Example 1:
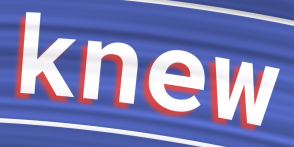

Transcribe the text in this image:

knew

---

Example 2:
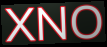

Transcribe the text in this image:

XNO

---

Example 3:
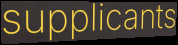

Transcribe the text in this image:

supplicants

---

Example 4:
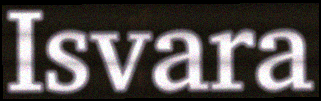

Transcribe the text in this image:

Isvara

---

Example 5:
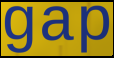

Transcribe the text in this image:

gap